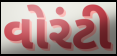
વોરંટી